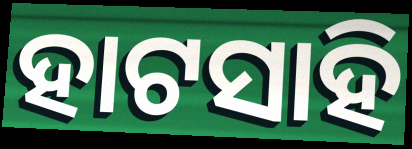
ହାଟସାହି